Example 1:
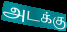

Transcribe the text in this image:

அடக்கு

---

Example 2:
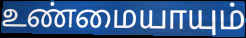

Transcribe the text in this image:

உண்மையாயும்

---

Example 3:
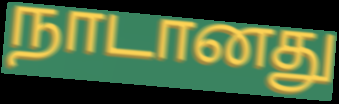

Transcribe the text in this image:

நாடானது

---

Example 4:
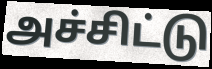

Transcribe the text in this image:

அச்சிட்டு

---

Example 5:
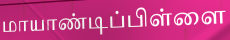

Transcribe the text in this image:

மாயாண்டிப்பிள்ளை